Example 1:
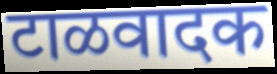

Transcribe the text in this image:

टाळवादक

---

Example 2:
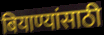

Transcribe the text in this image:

बियाण्यांसाठी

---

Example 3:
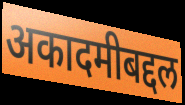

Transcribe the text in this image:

अकादमीबद्दल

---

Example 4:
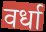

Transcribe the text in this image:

वर्धा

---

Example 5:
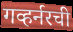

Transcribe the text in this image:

गव्हर्नरची